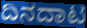
ದಿನದಾಟ